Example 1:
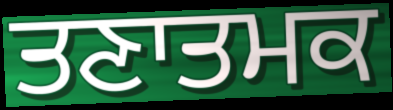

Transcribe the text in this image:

ਤਣਾਤਮਕ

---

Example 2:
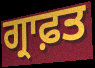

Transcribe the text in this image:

ਗ੍ਰਾਫ਼ਤ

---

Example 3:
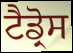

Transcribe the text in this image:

ਟੈਡ੍ਰੋਸ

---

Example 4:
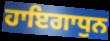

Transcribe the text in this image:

ਹਾਇਗਾਧੁਨ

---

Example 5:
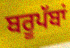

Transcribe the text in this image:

ਬਰੂਪੱਬਾਂ